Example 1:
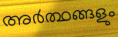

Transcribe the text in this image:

അർത്ഥങ്ങളും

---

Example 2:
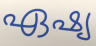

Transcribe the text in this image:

ഏഷ്യ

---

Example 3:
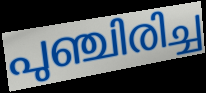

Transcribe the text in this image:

പുഞ്ചിരിച്ച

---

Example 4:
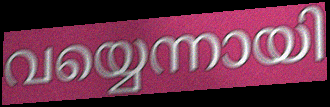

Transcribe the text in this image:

വയ്യെന്നായി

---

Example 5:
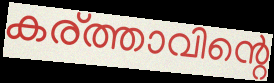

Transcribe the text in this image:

കര്ത്താവിന്റെ